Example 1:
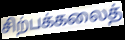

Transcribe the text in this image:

சிற்பக்கலைத்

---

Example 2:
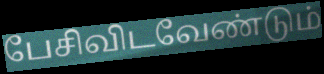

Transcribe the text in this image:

பேசிவிடவேண்டும்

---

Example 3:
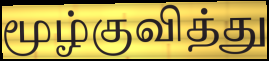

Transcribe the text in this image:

மூழ்குவித்து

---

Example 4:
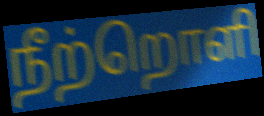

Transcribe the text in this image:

நீற்றொளி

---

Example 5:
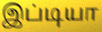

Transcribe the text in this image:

இப்டியா